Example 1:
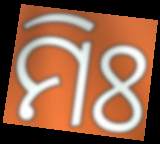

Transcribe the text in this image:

ମିଃ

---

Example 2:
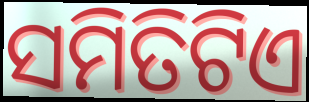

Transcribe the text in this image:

ସମିତିଟିଏ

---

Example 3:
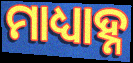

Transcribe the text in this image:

ମାଧ୍ୟାହ୍ନ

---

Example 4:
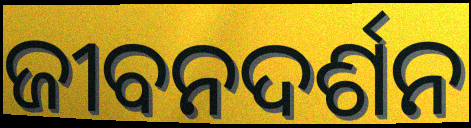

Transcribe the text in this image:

ଜୀବନଦର୍ଶନ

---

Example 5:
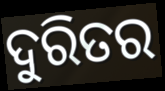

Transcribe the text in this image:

ଦୁରିତର